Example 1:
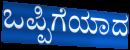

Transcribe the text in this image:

ಒಪ್ಪಿಗೆಯಾದ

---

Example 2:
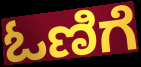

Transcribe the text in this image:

ಓಣಿಗೆ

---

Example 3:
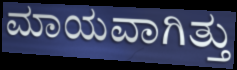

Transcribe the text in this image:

ಮಾಯವಾಗಿತ್ತು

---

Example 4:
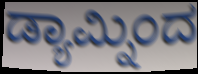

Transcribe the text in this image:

ಡ್ಯಾಮ್ನಿಂದ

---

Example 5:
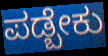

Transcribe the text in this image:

ಪಡ್ಬೇಕು